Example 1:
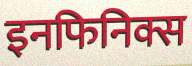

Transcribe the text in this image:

इनफिनिक्स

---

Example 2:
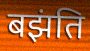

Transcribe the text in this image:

बझंति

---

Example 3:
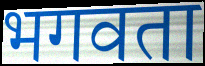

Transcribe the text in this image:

भगवता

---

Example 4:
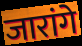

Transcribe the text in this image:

जारांगे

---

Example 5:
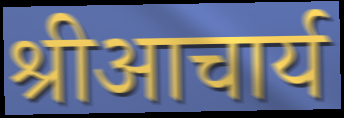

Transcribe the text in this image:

श्रीआचार्य